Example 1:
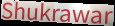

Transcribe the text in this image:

Shukrawar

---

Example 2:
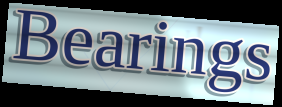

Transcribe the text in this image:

Bearings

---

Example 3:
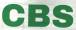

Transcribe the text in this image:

CBS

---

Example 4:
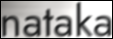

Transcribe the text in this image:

nataka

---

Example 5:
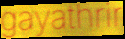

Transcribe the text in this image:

gayathrir